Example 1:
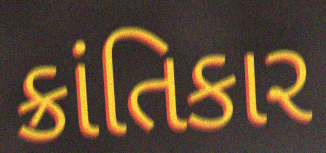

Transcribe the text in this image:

ક્રાંતિકાર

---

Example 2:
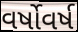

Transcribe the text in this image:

વર્ષોવર્ષ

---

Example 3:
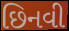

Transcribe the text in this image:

છિનવી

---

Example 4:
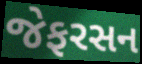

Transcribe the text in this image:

જેફરસન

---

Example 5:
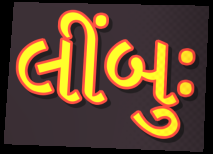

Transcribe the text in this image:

લીંબુઃ